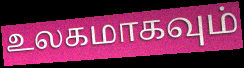
உலகமாகவும்